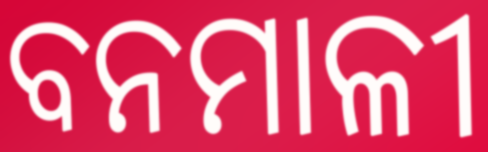
ବନମାଳୀ